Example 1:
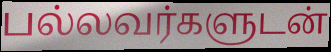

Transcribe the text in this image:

பல்லவர்களுடன்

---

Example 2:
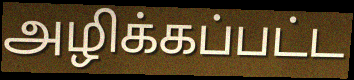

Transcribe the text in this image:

அழிக்கப்பட்ட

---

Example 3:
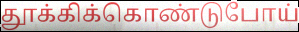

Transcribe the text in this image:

தூக்கிக்கொண்டுபோய்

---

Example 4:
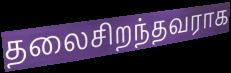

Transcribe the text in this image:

தலைசிறந்தவராக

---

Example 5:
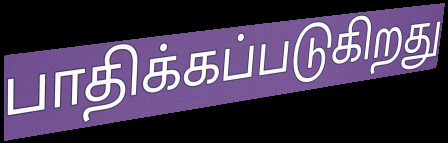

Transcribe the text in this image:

பாதிக்கப்படுகிறது